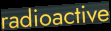
radioactive